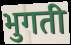
भुगती